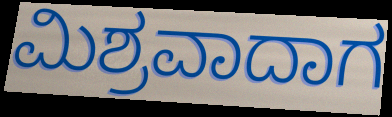
ಮಿಶ್ರವಾದಾಗ